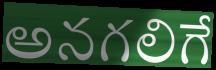
అనగలిగే